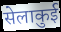
सेलाकुई